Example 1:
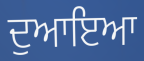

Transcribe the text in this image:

ਦੁਆਇਆ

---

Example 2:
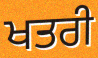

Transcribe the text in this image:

ਖਤਰੀ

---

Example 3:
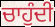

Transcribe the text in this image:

ਚਾਹੁੰਦੀ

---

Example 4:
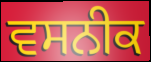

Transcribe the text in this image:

ਵਸਨੀਕ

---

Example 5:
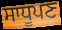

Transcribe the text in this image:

ਸਾਧੂਪਣ